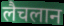
लैचलान